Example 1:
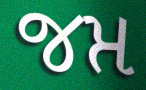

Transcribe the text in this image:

જપ્ત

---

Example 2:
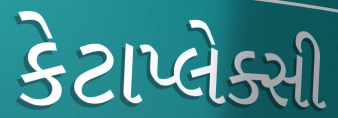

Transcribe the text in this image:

કેટાપ્લેક્સી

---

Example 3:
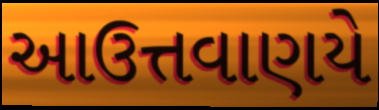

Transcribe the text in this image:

આઉત્તવાણયે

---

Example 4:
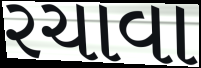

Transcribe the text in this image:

રચાવા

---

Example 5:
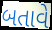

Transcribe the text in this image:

બતાવે